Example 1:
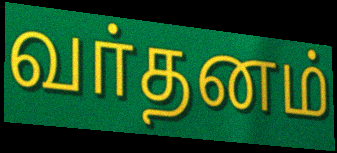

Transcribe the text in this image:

வர்தனம்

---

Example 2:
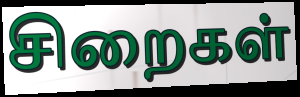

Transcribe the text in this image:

சிறைகள்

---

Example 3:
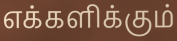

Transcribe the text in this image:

எக்களிக்கும்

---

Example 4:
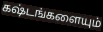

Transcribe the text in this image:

கஷ்டங்களையும்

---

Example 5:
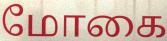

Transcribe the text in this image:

மோகை